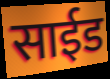
साईड